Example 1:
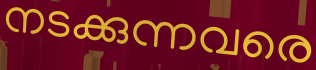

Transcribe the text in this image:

നടക്കുന്നവരെ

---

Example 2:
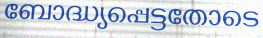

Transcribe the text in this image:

ബോദ്ധ്യപ്പെട്ടതോടെ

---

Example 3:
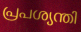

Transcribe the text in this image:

പ്രപശ്യന്തി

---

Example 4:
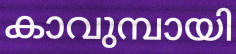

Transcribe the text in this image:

കാവുമ്പായി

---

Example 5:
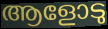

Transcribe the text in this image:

ആളോടു